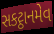
સકટ્ઠાનમેવ